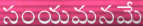
సంయమనమే